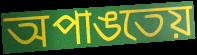
অপাঙতেয়